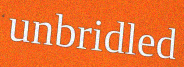
unbridled